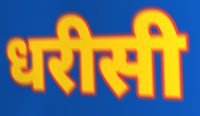
धरीसी